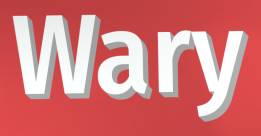
Wary